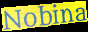
Nobina